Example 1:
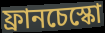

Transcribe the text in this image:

ফ্রানচেস্কো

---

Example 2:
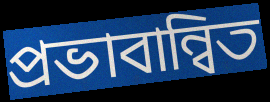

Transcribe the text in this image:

প্রভাবান্বিত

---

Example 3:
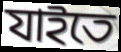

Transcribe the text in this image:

যাইতে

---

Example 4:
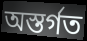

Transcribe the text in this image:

অস্তর্গত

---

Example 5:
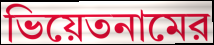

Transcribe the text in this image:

ভিয়েতনামের